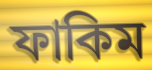
ফাকিম